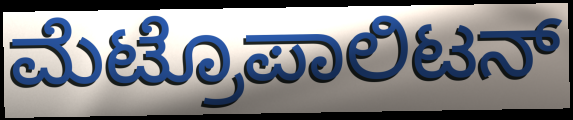
ಮೆಟ್ರೊಪಾಲಿಟನ್